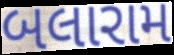
બલારામ